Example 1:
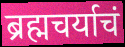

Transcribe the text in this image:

ब्रह्मचर्याचं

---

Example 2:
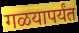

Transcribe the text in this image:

गळयापर्यंत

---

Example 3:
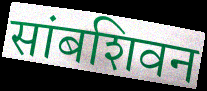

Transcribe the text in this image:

सांबशिवन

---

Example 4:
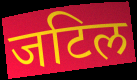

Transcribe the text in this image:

जटिल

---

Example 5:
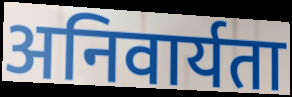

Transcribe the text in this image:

अनिवार्यता